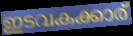
ഇടവകക്കാര്